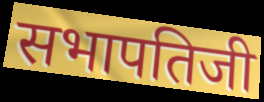
सभापतिजी